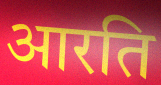
आरति